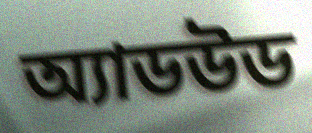
অ্যাডউড